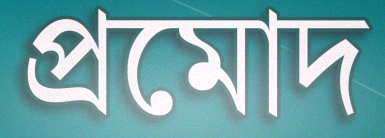
প্ৰমোদ